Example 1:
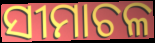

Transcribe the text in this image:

ସୀମାଚଳ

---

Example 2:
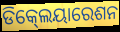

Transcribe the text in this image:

ଡିକ୍‍ଲେୟାରେଶନ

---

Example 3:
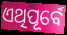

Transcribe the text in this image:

ଏଥିପୂର୍ବେ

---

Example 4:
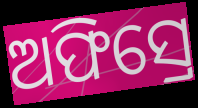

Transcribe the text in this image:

ଅଫିସ୍ରେ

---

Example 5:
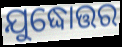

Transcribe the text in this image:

ଯୁଦ୍ଧୋତ୍ତର